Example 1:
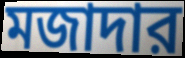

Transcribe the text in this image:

মজাদার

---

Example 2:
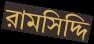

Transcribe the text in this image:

রামসিদ্দি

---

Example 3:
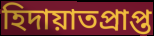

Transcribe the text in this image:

হিদায়াতপ্রাপ্ত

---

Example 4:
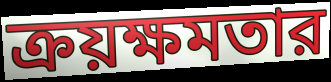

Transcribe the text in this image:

ক্রয়ক্ষমতার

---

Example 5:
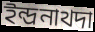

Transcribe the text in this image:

ইন্দ্রনাথদা